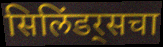
सिलिंडर्सचा